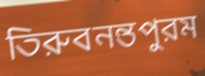
তিরুবনন্তপুরম